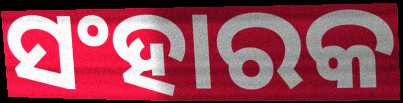
ସଂହାରକ